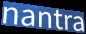
nantra